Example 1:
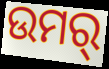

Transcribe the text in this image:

ଉମର୍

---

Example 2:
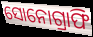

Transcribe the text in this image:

ସୋନୋଗ୍ରାଫି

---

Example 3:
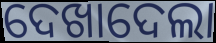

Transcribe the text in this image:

ଦେଖାଦେଲା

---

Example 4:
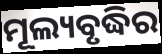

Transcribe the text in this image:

ମୂଲ୍ୟବୃଦ୍ଧିର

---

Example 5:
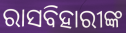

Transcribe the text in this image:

ରାସବିହାରୀଙ୍କ